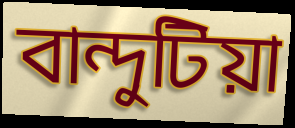
বান্দুটিয়া